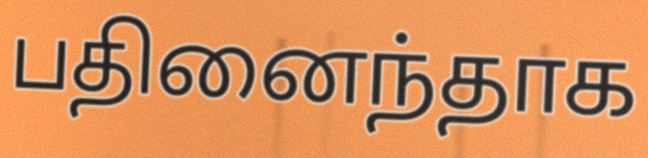
பதினைந்தாக